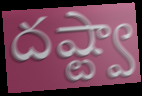
దష్ట్వా